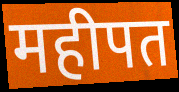
महीपत